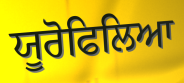
ਯੂਰੋਫਿਲਿਆ